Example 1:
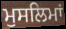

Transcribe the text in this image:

ਮੁਸਲਿਮਾਂ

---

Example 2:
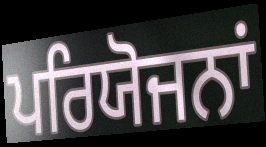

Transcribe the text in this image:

ਪਰਿਯੋਜਨਾਂ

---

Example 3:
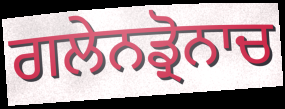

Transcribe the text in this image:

ਗਲੇਨਡ੍ਰੋਨਾਚ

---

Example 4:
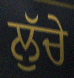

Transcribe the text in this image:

ਲੁੱਚੇ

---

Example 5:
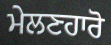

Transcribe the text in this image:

ਮੇਲਣਹਾਰੋ